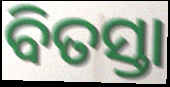
ବିତସ୍ତା